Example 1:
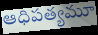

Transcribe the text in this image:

ఆధిపత్యమూ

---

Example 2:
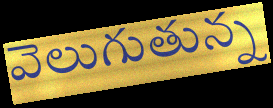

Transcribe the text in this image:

వెలుగుతున్న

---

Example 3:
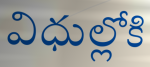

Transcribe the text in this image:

విధుల్లోకి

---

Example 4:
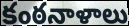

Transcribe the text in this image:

కంఠనాళాలు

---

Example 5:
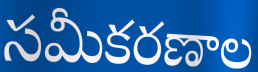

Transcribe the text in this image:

సమీకరణాల